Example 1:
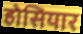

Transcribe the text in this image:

होसियार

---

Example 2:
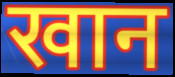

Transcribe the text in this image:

खान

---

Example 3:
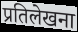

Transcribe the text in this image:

प्रतिलेखना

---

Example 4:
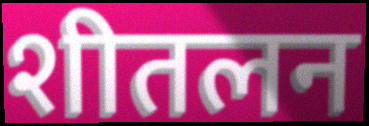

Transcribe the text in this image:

शीतलन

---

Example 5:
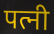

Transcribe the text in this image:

पत्‍नी